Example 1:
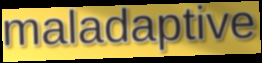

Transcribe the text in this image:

maladaptive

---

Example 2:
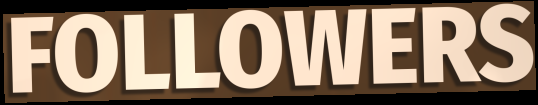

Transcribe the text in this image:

FOLLOWERS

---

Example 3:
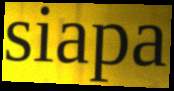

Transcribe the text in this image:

siapa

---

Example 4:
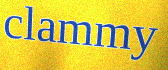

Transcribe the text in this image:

clammy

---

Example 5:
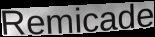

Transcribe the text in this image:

Remicade